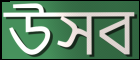
উসব